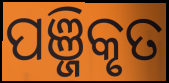
ପଞ୍ଜିକୃତ